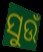
ସୁଉଁ